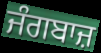
ਜੰਗਬਾਜ਼